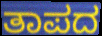
ತಾಪದ